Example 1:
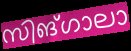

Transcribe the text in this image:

സിങ്ഗാലാ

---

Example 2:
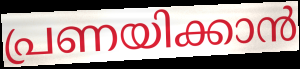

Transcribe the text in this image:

പ്രണയിക്കാൻ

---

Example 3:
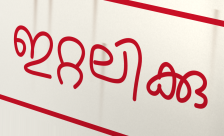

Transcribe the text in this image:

ഇറ്റലിക്കു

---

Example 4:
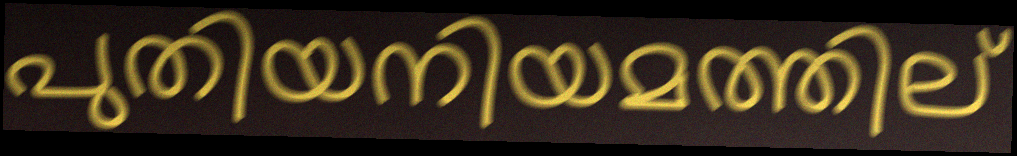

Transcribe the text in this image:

പുതിയനിയമത്തില്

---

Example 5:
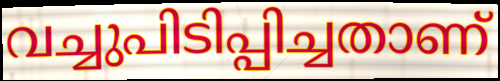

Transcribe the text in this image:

വച്ചുപിടിപ്പിച്ചതാണ്